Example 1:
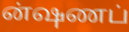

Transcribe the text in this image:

ன்ஷணப்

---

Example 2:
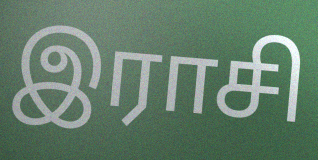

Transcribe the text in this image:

இராசி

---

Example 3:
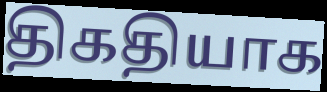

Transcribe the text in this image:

திகதியாக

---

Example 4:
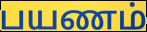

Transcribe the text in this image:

பயணம்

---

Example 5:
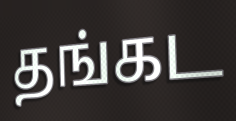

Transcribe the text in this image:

தங்கட